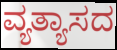
ವ್ಯತ್ಯಾಸದ